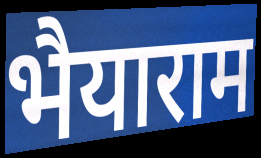
भैयाराम